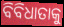
ବିବିଧାତାକୁ